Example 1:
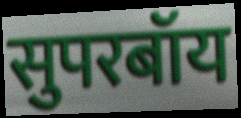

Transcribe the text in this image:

सुपरबॉय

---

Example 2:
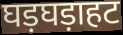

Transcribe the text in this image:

घड़घड़ाहट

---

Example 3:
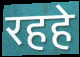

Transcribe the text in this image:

रहहे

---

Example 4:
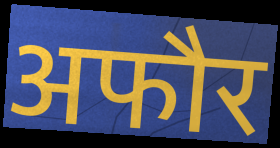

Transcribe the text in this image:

अफौर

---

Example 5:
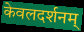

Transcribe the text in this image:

केवलदर्शनम्